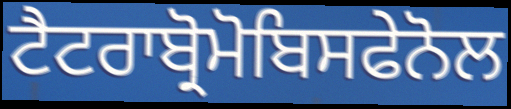
ਟੈਟਰਾਬ੍ਰੋਮੋਬਿਸਫੇਨੋਲ